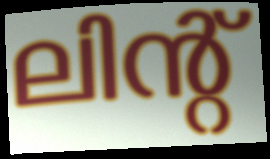
ലിന്റ്